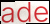
ade